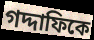
গদ্দাফিকে